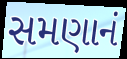
સમણાનં